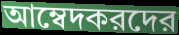
আম্বেদকরদের